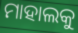
ମାହାଲକୁ